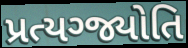
પ્રત્યગ્જ્યોતિ